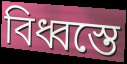
বিধ্বস্তে